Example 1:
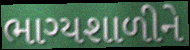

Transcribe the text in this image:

ભાગ્યશાળીને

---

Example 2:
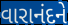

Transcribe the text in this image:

વારાનંદને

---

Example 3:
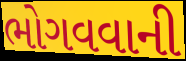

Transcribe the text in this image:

ભોગવવાની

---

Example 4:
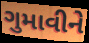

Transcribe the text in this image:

ગુમાવીને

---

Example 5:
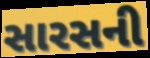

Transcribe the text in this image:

સારસની